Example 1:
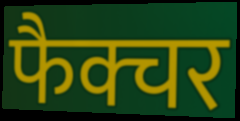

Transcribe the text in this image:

फैक्चर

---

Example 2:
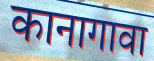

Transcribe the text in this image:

कानागावा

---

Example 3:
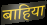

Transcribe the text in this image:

बाहिया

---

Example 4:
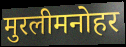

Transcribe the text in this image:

मुरलीमनोहर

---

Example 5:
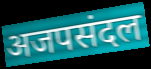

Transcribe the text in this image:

अजपसंदल